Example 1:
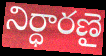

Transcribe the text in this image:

నిర్ధారణై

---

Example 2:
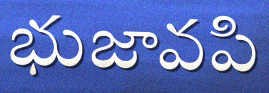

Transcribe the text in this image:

భుజావపి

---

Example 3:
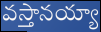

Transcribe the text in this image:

వస్తానయ్యా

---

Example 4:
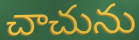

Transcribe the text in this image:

చాచును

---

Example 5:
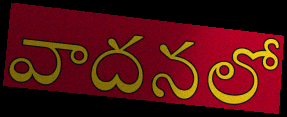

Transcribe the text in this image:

వాదనలో